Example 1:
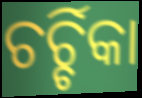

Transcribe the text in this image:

ଚର୍ଚ୍ଚିକା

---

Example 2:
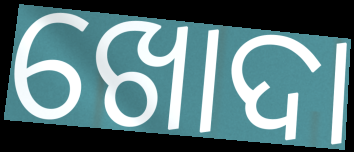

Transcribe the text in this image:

ଖୋଦା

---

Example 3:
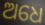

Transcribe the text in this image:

ଅଧେ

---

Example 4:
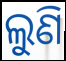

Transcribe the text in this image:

ଲୁଣି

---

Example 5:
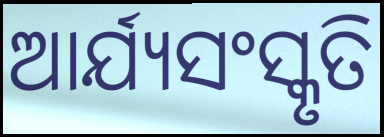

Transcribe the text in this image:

ଆର୍ଯ୍ୟସଂସ୍କୃତି